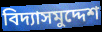
বিদ্যাসমুদ্দেশ